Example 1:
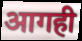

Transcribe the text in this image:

आगही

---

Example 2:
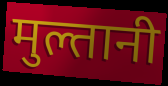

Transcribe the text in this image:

मुल्‍तानी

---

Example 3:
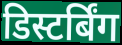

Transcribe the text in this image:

डिस्टर्बिंग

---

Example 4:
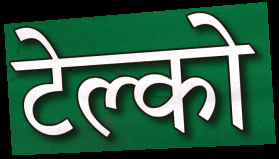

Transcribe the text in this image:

टेल्को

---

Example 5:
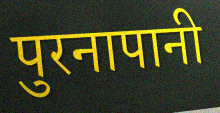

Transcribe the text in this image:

पुरनापानी